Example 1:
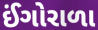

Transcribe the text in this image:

ઈંગોરાળા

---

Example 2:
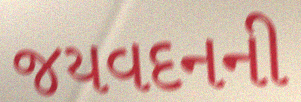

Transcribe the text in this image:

જયવદનની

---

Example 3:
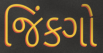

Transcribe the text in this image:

જિંકગો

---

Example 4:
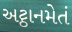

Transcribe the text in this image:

અટ્ઠાનમેતં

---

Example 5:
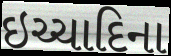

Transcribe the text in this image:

ઇચ્ચાદિના